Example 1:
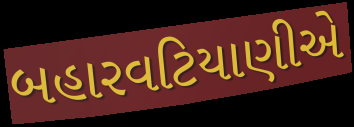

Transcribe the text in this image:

બહારવટિયાણીએ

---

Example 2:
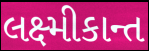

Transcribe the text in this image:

લક્ષ્મીકાન્ત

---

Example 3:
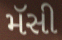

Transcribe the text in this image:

મૅસી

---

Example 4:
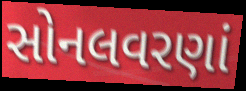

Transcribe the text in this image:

સોનલવરણાં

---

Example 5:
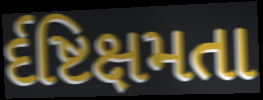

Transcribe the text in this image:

ર્દષ્ટિક્ષમતા